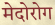
मेदोरोग